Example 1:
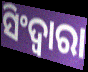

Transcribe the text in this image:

ସିଂଦ୍ୱାରା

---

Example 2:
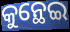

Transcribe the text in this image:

କୁନ୍ଥେଇ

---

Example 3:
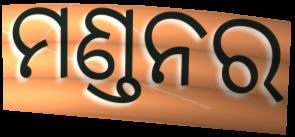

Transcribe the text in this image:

ମଣ୍ଡନର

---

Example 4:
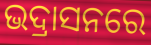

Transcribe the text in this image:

ଭଦ୍ରାସନରେ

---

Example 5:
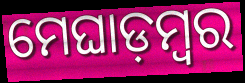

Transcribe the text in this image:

ମେଘାଡ଼ମ୍ବର